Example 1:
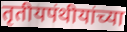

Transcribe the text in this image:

तृतीयपंथीयांच्या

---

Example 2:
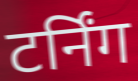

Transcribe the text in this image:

टर्निंग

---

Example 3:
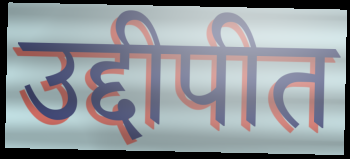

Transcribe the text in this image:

उद्दीपीत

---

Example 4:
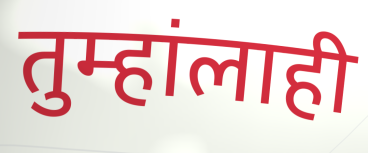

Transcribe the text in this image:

तुम्हांलाही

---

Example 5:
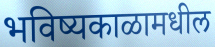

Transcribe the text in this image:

भविष्यकाळामधील